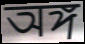
অঙ্গ